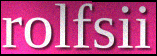
rolfsii